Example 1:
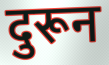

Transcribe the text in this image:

दुरून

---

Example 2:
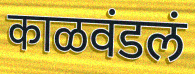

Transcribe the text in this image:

काळवंडलं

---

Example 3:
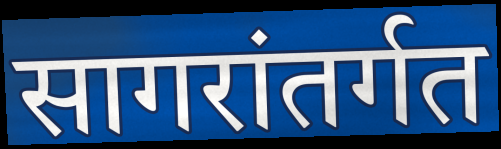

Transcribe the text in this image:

सागरांतर्गत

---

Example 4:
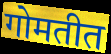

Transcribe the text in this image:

गोमतीत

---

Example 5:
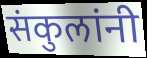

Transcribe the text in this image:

संकुलांनी